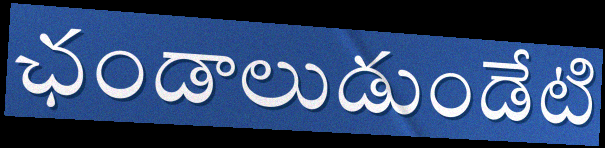
ఛండాలుడుండేటి